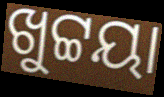
ଖୁଟ୍ଟୟା